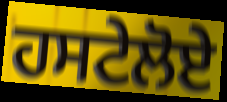
ਹਸਟੇਲੋਏ